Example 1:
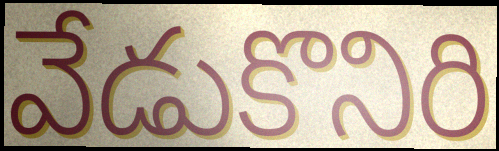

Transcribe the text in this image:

వేడుకొనిరి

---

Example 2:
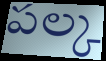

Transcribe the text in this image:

పల్క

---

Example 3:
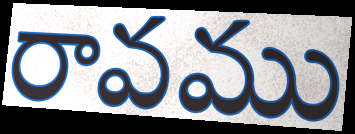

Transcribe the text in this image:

రావము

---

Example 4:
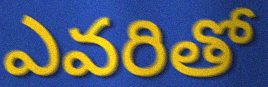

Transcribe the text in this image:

ఎవరితో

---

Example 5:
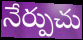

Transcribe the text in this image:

నేర్పుచు